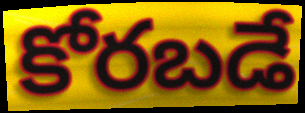
కోరబడే